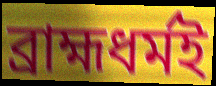
ব্রাহ্মধর্মই